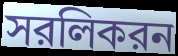
সরলিকরন